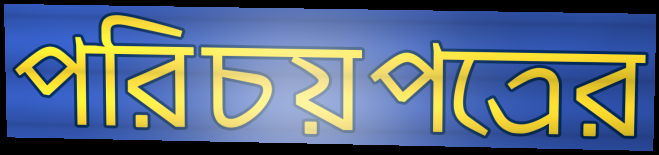
পরিচয়পত্রের